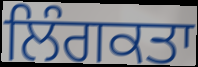
ਲਿੰਗਕਤਾ